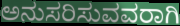
ಅನುಸರಿಸುವವರಾಗಿ